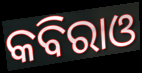
କବିରାଓ